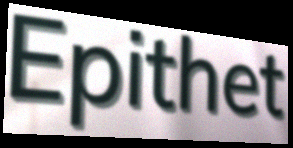
Epithet